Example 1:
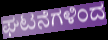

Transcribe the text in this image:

ಘಟನೆಗಳಿಂದ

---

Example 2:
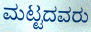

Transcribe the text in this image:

ಮಟ್ಟದವರು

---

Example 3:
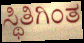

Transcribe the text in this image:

ಸ್ಥಿತಿಗಿಂತ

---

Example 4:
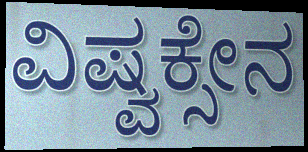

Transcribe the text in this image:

ವಿಷ್ವಕ್ಸೇನ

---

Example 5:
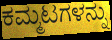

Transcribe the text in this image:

ಕಮ್ಮಟಗಳನ್ನು